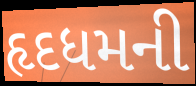
હૃદધમની